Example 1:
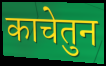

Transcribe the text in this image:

काचेतुन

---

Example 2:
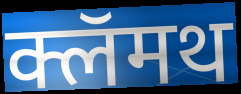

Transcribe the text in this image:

क्लॅमथ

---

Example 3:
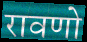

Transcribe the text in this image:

रावणो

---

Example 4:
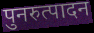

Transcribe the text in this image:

पुनरुत्पादन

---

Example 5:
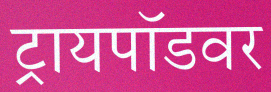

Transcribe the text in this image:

ट्रायपॉडवर